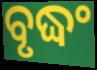
ବୃଦ୍ଧଂ